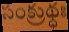
సంక్రుథ్ధః